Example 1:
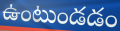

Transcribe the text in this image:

ఉంటుండడం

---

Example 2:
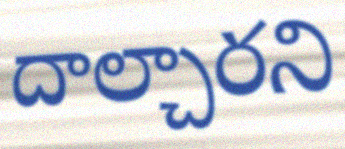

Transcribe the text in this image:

దాల్చారని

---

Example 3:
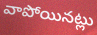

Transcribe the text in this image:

వాపోయినట్లు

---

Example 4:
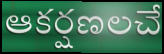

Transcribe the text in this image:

ఆకర్షణలచే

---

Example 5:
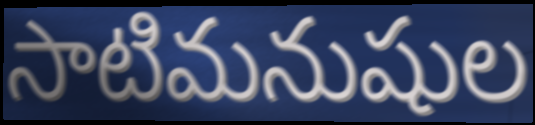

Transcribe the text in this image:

సాటిమనుషుల